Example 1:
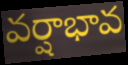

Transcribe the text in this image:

వర్షాభావ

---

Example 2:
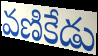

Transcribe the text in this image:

వణికేడు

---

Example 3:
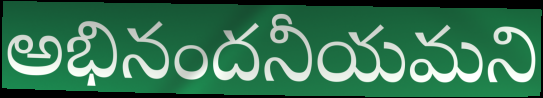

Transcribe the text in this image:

అభినందనీయమని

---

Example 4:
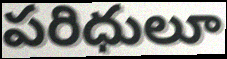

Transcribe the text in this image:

పరిధులూ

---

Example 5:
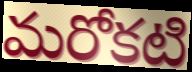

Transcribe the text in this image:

మరోకటి